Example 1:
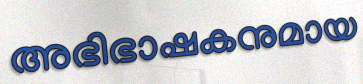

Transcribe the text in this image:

അഭിഭാഷകനുമായ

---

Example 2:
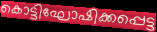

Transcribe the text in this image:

കൊട്ടിഘോഷിക്കപ്പെട്ട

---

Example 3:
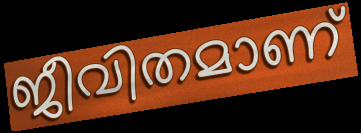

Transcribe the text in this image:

ജീവിതമാണ്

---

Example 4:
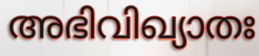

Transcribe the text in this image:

അഭിവിഖ്യാതഃ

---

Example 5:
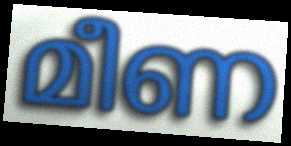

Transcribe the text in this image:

മീണ